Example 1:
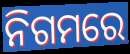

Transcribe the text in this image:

ନିଗମରେ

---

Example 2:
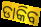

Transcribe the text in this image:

ଡାକିବ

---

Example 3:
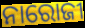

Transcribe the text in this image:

ନାରୋଜୀ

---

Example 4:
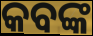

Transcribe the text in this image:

କବଙ୍କ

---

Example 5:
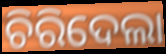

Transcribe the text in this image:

ଚିରିଦେଲା